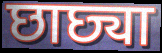
छाछ्या